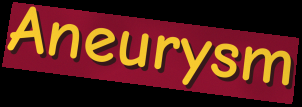
Aneurysm